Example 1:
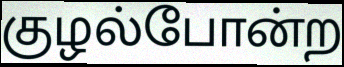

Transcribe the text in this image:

குழல்போன்ற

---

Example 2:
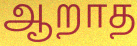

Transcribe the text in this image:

ஆறாத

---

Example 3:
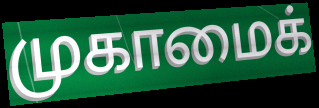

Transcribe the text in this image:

முகாமைக்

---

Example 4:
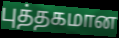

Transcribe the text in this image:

புத்தகமான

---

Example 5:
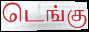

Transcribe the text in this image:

டெங்கு